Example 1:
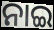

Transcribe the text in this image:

ନାଇ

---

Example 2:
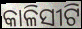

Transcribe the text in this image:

କାଳିସୀଟି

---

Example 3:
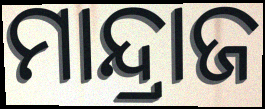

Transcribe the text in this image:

ମାନ୍ଦ୍ରାଜ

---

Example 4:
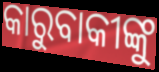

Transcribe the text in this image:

କାରୁବାକୀଙ୍କୁ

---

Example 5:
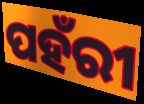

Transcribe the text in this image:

ପହଁରୀ